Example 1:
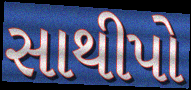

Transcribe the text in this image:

સાથીપો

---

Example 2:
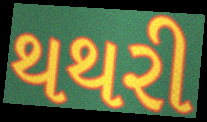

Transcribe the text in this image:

થથરી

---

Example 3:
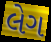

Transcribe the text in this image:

લેગ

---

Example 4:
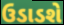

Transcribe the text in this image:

ઉડાડશે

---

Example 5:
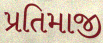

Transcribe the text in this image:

પ્રતિમાજી